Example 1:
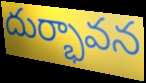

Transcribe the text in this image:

దుర్భావన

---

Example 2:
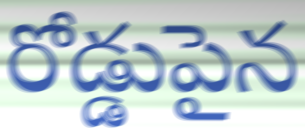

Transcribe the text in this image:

రోడ్డుపైన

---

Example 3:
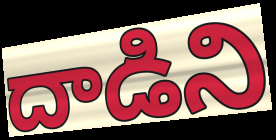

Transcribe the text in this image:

దాడిని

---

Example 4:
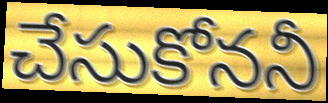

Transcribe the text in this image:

చేసుకోననీ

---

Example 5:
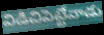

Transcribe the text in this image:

విడిచిపెట్టేవాడు